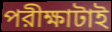
পরীক্ষাটাই